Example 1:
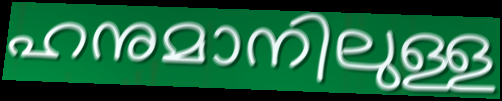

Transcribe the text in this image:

ഹനുമാനിലുള്ള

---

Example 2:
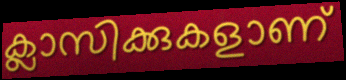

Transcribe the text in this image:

ക്ലാസിക്കുകളാണ്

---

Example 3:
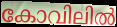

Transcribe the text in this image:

കോവിലിൽ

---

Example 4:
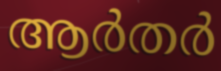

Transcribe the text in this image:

ആർതർ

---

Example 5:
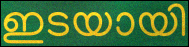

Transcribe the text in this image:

ഇടയായി